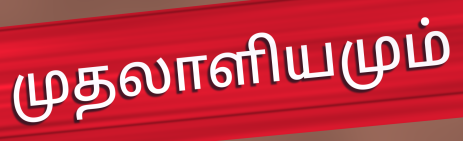
முதலாளியமும்